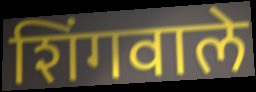
शिंगवाले